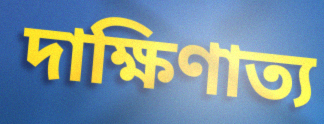
দাক্ষিণাত্য